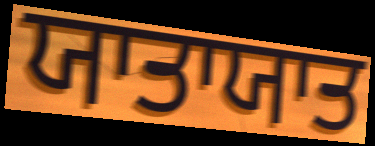
ਯਾਤਾਯਾਤ